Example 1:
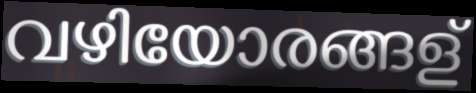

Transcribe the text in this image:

വഴിയോരങ്ങള്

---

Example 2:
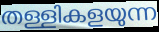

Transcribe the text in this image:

തള്ളികളയുന്ന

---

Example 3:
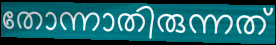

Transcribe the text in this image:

തോന്നാതിരുന്നത്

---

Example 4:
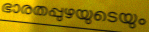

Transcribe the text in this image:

ഭാരതപ്പുഴയുടെയും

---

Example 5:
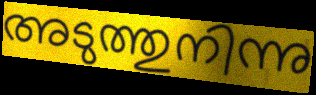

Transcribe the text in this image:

അടുത്തുനിന്നു